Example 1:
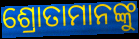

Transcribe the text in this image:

ଶ୍ରୋତାମାନଙ୍କୁ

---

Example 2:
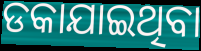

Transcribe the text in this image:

ଡକାଯାଇଥିବା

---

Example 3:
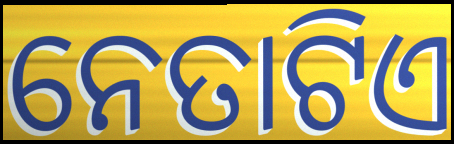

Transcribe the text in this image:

ନେତାଟିଏ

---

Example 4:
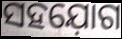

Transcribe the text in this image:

ସହଯ଼ୋଗ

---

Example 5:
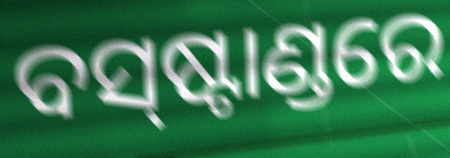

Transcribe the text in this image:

ବସ୍‍ଷ୍ଟାଣ୍ଡରେ